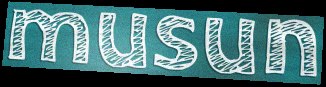
musun